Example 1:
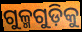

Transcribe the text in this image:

ଗୁଳ୍ମଗୁଡ଼ିକୁ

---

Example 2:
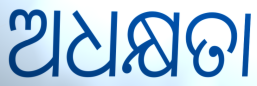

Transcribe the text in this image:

ଅଧକ୍ଷତା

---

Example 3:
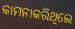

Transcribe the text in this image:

କାମନାକରିଥିଲେ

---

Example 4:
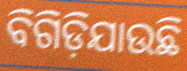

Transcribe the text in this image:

ବିଗିଡ଼ିଯାଉଛି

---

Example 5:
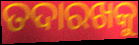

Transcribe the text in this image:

ତଦାରଖକୁ